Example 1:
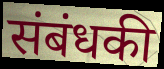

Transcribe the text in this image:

संबंधकी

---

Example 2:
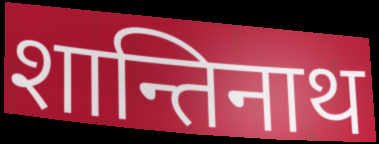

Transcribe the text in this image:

शान्तिनाथ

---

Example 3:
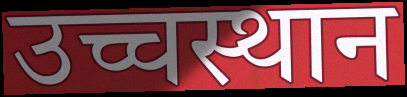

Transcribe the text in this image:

उच्चस्थान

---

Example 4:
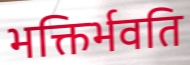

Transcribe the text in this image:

भक्तिर्भवति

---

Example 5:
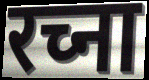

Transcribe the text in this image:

रच्ना